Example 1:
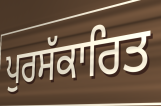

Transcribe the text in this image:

ਪੁਰਸੱਕਾਰਿਤ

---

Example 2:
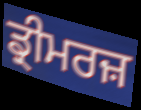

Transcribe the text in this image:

ਡ੍ਰੀਮਰਜ਼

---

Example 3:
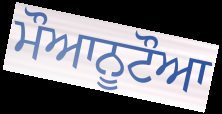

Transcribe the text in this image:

ਮੌਆਨੂਟੌਆ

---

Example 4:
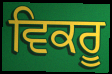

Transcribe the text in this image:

ਵਿਕਰੂ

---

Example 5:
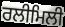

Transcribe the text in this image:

ਰਲੀਮਿਲੀ